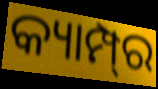
କ୍ୟାମ୍ପ୍‍ର